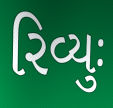
રિવ્યુઃ